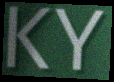
KY